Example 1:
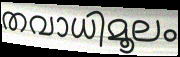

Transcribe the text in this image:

തവാധിമൂലം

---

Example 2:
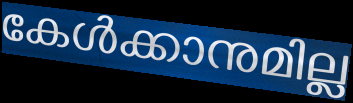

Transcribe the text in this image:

കേൾക്കാനുമില്ല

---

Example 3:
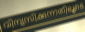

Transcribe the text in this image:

വിന്യസിക്കുന്നതിലൂടെ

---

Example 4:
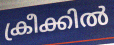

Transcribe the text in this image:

ക്രീക്കിൽ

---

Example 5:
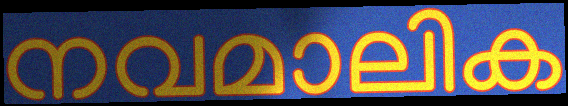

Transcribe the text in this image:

നവമാലിക